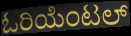
ಓರಿಯೆಂಟಲ್